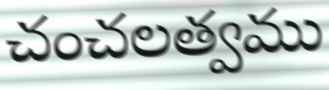
చంచలత్వము